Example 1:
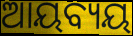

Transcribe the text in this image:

ଆୟବ୍ୟୟ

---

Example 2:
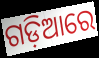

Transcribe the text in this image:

ଗଡ଼ିଆରେ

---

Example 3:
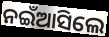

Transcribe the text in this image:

ନଇଁଆସିଲେ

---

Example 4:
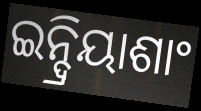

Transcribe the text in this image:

ଇନ୍ଦ୍ରିୟାଶାଂ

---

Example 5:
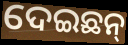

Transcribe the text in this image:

ଦେଇଛନ୍